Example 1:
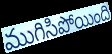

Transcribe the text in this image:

ముగిసిపోయింది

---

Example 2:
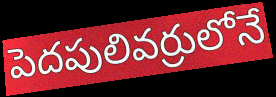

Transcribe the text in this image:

పెదపులివర్రులోనే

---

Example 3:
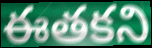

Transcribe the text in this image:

ఈతకని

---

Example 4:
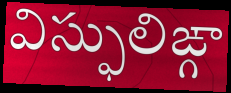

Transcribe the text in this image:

విస్ఫులిఙ్గా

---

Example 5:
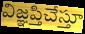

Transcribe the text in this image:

విజ్ఞప్తిచేస్తూ